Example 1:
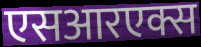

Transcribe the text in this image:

एसआरएक्स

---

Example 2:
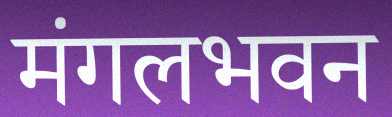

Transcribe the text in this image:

मंगलभवन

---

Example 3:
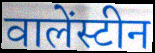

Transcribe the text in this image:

वालेंस्टीन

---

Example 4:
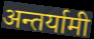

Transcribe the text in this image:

अन्तर्यामी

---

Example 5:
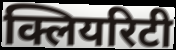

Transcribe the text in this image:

क्लियरिटी